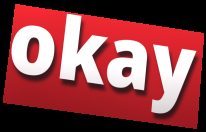
okay